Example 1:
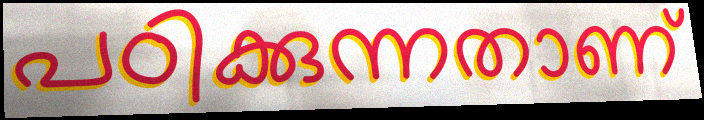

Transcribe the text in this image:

പഠിക്കുന്നതാണ്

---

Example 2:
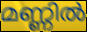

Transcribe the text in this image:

മണ്ണിൽ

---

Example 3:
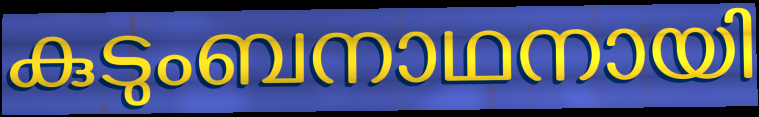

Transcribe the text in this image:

കുടുംബനാഥനായി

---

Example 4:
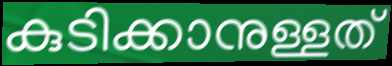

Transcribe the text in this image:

കുടിക്കാനുള്ളത്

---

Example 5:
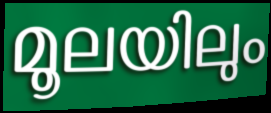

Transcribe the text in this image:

മൂലയിലും